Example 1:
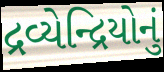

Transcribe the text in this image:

દ્રવ્યેન્દ્રિયોનું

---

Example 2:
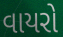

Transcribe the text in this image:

વાયરો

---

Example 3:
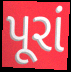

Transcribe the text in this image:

પૂરાં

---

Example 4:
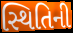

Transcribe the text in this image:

સ્થિતિની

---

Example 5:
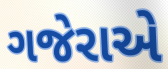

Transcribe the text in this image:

ગજેરાએ